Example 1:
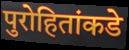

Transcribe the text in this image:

पुरोहितांकडे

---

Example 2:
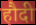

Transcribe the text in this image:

हौदी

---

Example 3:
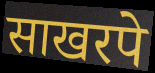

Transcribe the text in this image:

साखरपे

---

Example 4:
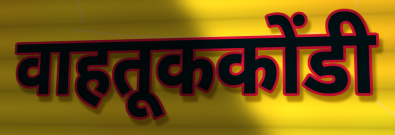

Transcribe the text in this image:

वाहतूककोंडी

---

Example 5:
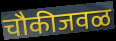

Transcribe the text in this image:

चौकीजवळ